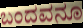
ಬಂದವನೂ